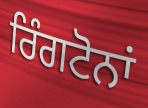
ਰਿੰਗਟੋਨਾਂ